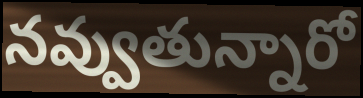
నవ్వుతున్నారో